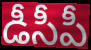
డీసీపీ